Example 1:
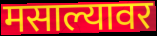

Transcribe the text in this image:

मसाल्यावर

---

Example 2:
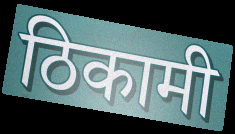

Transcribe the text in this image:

ठिकामी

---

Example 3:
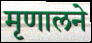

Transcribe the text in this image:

मृणालने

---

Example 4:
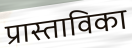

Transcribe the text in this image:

प्रास्ताविका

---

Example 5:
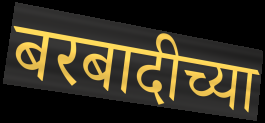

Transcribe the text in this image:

बरबादीच्या